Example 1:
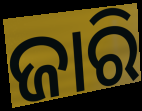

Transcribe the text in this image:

ଜାରି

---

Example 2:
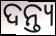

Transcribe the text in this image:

ଦନ୍ତ୍ୟ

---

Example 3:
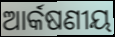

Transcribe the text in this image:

ଆର୍କଷଣୀୟ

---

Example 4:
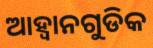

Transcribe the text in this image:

ଆହ୍ୱାନଗୁଡିକ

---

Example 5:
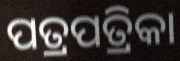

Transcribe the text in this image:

ପତ୍ରପତ୍ରିକା